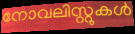
നോവലിസ്റ്റുകൾ